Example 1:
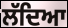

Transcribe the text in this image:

ਲੱਦਿਆ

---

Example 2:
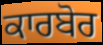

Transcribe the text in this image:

ਕਾਰਬੋਰ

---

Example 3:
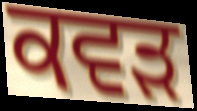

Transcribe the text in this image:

ਕਵੜ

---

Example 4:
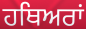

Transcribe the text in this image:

ਹਥਿਅਰਾਂ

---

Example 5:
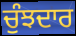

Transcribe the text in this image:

ਚੁੰਝਦਾਰ